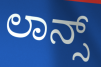
ಲಾನ್ಸ್